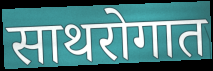
साथरोगात